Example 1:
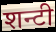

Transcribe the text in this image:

शन्टी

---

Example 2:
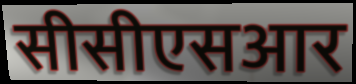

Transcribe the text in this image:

सीसीएसआर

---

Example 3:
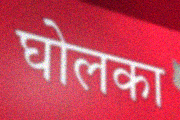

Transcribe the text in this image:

घोलका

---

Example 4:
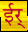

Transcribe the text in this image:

ईर्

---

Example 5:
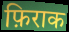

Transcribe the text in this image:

फ़िराक